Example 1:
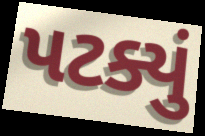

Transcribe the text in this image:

પટક્યું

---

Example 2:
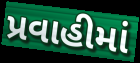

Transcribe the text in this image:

પ્રવાહીમાં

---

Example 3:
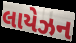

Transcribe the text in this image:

લાયેઝન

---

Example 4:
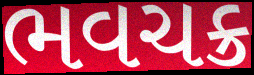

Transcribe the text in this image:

ભવચક્ર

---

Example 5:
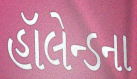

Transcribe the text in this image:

હૉલેન્ડના